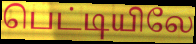
பெட்டியிலே